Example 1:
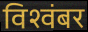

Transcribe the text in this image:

विश्वंबर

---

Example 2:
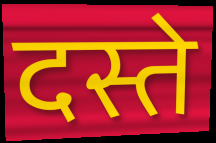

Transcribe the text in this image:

दस्ते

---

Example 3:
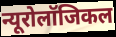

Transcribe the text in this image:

न्यूरोलॉजिकल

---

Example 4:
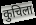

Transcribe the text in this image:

कुचिला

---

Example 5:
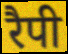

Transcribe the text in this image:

रैपी